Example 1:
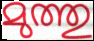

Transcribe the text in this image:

മുത്തു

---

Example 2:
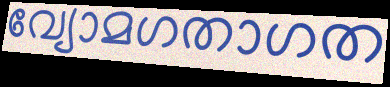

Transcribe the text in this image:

വ്യോമഗതാഗത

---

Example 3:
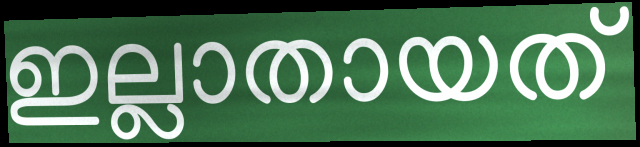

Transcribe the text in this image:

ഇല്ലാതായത്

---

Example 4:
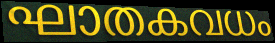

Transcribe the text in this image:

ഘാതകവധം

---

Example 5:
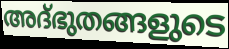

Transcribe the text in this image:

അദ്ഭുതങ്ങളുടെ